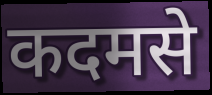
कदमसे